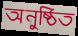
অনুষ্ঠিত